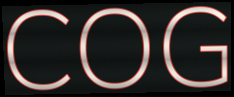
COG